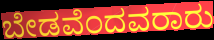
ಬೇಡವೆಂದವರಾರು